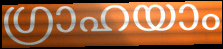
ഗ്രാഹയാം